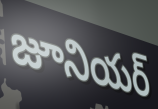
జూనియర్